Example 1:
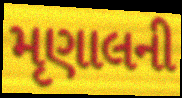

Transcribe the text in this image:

મૃણાલની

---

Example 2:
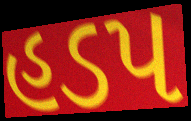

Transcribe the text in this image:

હડપ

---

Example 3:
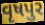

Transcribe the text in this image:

વૃષપુર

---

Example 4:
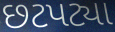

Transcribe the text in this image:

છટપટ્યા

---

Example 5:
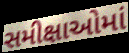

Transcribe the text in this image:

સમીક્ષાઓમાં